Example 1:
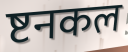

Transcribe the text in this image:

ष्टनकल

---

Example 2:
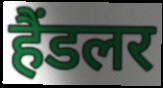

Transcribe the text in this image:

हैंडलर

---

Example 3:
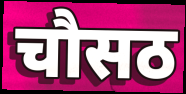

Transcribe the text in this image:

चौसठ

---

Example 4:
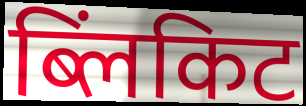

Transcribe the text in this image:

ब्लिंकिट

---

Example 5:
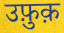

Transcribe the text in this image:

उफ़ुक़